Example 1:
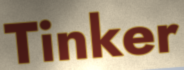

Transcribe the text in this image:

Tinker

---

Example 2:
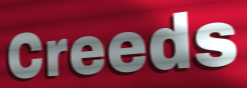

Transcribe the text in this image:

Creeds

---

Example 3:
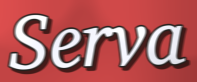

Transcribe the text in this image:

Serva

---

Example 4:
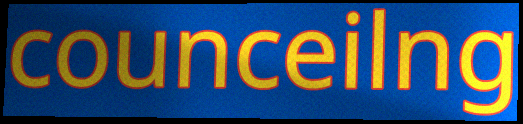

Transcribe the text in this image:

counceilng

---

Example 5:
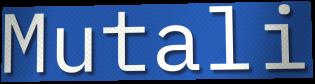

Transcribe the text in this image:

Mutali